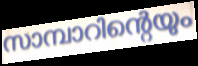
സാമ്പാറിന്റെയും